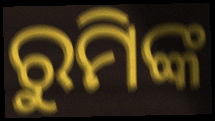
ରୁମିଙ୍କ